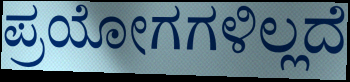
ಪ್ರಯೋಗಗಳಿಲ್ಲದೆ